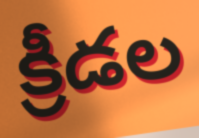
క్రీడల